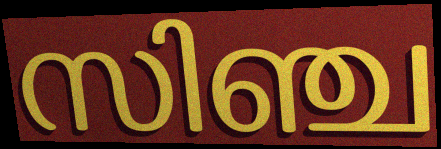
സിഞ്ച